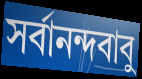
সর্বানন্দবাবু